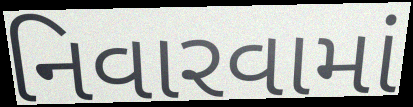
નિવારવામાં